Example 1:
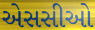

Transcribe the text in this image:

એસસીઓ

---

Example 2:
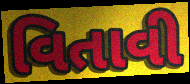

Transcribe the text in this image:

વિતાવી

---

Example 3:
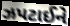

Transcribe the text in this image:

ઝપટાઈને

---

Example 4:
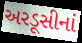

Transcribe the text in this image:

અરડૂસીનાં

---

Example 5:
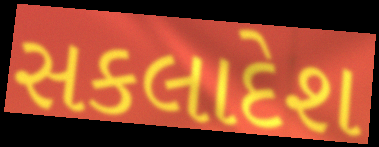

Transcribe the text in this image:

સકલાદેશ